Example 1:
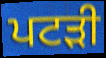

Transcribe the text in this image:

ਪਟੜੀ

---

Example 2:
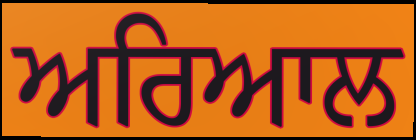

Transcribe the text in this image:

ਅਰਿਆਲ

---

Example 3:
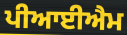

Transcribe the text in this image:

ਪੀਆਈਐਮ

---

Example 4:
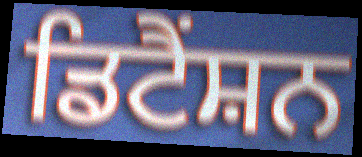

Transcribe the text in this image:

ਡਿਟੈਂਸ਼ਨ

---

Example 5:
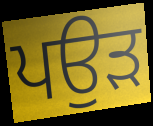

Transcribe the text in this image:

ਪਉੜ